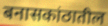
बनासकांठातील